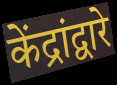
केंद्रांद्वारे